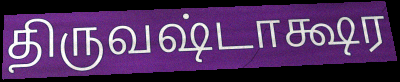
திருவஷ்டாக்ஷர